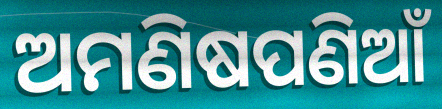
ଅମଣିଷପଣିଆଁ